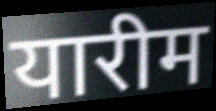
यारीम